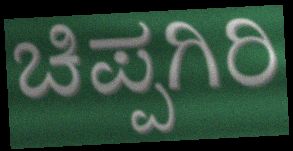
ಚಿಪ್ಪಗಿರಿ